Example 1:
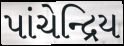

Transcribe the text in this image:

પાંચેન્દ્રિય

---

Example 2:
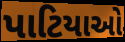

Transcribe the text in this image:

પાટિયાઓ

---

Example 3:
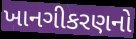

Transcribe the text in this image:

ખાનગીકરણનો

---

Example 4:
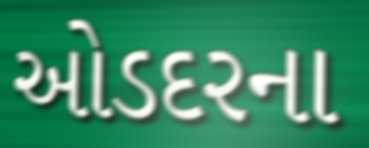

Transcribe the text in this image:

ઓડદરના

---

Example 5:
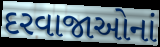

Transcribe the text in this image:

દરવાજાઓનાં